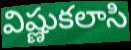
విష్ణుకలాసి